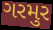
ગરમુર